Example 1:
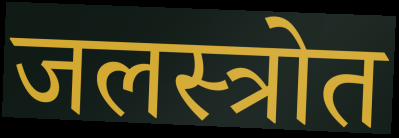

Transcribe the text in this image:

जलस्त्रोत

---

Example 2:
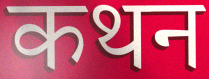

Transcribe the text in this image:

कथन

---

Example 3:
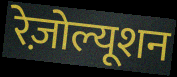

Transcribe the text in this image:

रेज़ोल्यूशन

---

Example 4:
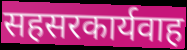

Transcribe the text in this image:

सहसरकार्यवाह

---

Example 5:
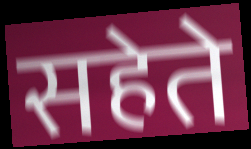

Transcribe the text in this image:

सहेते